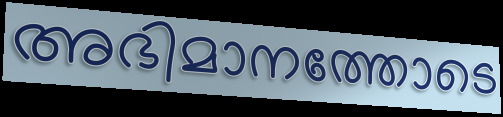
അഭിമാനത്തോടെ